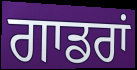
ਗਾਡਰਾਂ